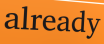
already